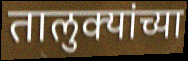
तालुक्यांच्या